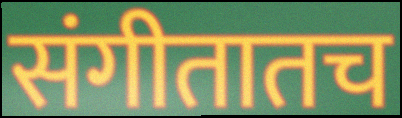
संगीतातच